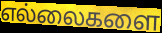
எல்லைகளை